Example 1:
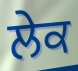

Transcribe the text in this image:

ਲੇਕ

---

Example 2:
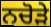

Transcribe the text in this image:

ਨਚੋੜੇ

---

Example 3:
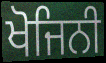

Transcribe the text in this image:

ਖੋਜਿਨੀ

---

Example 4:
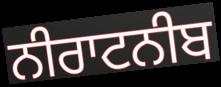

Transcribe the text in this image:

ਨੀਰਾਟਨੀਬ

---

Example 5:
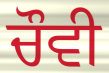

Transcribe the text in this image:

ਚੌਵੀ